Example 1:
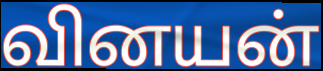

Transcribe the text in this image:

வினயன்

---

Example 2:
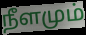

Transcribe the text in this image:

நீளமும்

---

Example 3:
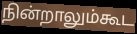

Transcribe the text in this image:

நின்றாலும்கூட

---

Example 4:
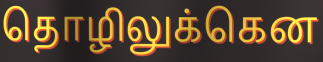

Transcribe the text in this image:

தொழிலுக்கென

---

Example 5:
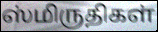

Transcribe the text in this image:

ஸ்மிருதிகள்